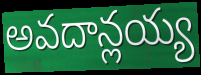
అవదాన్లయ్య